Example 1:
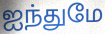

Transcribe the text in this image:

ஐந்துமே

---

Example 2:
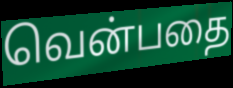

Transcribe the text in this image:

வென்பதை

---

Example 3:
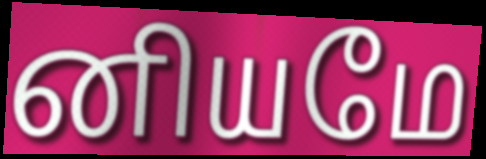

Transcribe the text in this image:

னியமே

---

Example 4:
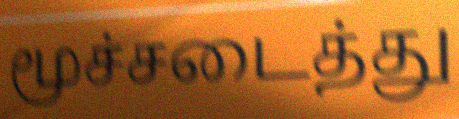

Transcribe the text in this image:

மூச்சடைத்து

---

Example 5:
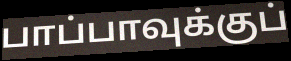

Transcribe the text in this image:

பாப்பாவுக்குப்